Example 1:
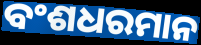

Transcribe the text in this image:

ବଂଶଧରମାନ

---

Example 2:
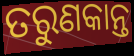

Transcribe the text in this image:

ତରୁଣକାନ୍ତ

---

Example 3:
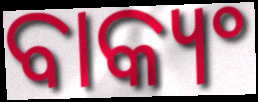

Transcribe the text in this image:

ବାକ୍ୟଂ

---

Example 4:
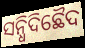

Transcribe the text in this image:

ସନ୍ଧିଦିଛୈଦ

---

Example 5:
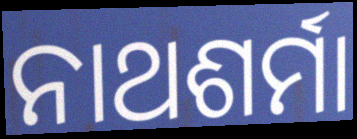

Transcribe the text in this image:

ନାଥଶର୍ମା